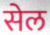
सेल